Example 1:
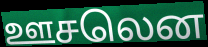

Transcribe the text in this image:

ஊசலென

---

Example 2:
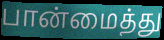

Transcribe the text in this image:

பான்மைத்து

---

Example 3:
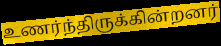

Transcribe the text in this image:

உணர்ந்திருக்கின்றனர்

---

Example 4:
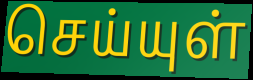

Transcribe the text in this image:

செய்யுள்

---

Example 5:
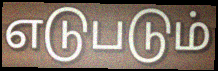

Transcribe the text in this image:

எடுபடும்